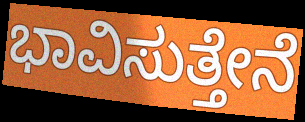
ಭಾವಿಸುತ್ತೇನೆ